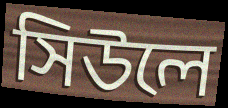
সিউলে